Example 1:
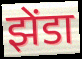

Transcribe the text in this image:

झेंडा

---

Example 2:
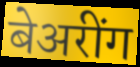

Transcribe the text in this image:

बेअरींग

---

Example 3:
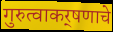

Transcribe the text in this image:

गुरुत्वाकर्षणाचे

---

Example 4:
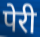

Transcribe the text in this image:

पेरी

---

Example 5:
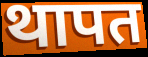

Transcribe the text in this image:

थापत